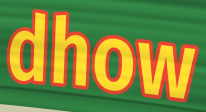
dhow